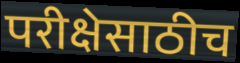
परीक्षेसाठीच